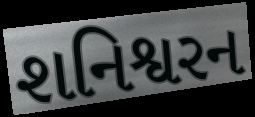
શનિશ્વરન